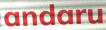
andaru